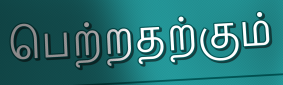
பெற்றதற்கும்